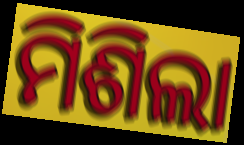
ମିଶିଲା